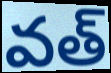
వత్